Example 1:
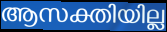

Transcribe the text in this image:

ആസക്തിയില്ല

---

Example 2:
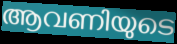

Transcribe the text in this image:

ആവണിയുടെ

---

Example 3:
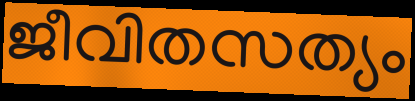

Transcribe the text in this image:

ജീവിതസത്യം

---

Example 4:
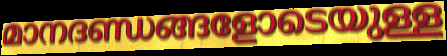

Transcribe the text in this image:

മാനദണ്ഡങ്ങളോടെയുള്ള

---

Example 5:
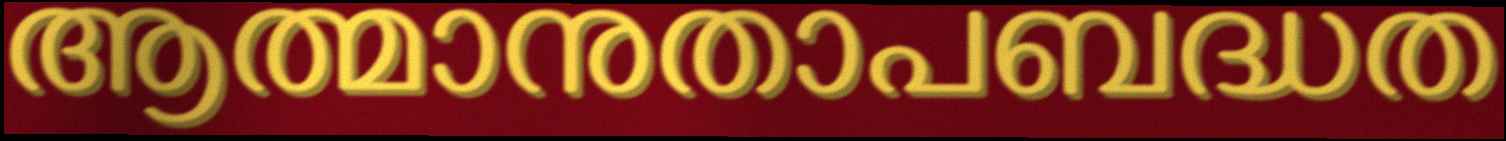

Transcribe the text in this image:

ആത്മാനുതാപബദ്ധത